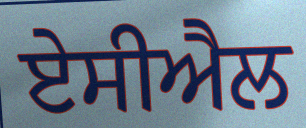
ਏਸੀਐਲ